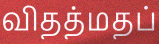
விதத்மதப்